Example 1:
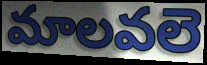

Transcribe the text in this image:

మాలవలె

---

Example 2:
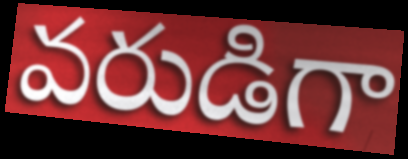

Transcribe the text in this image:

వరుడిగా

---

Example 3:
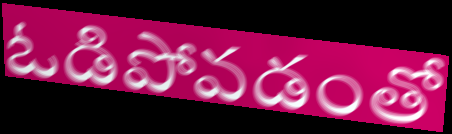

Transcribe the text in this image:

ఓడిపోవడంతో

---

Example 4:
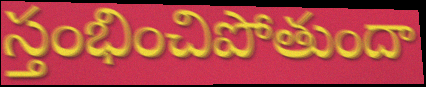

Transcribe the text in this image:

స్తంభించిపోతుందా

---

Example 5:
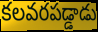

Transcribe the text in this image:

కలవరపడ్డాడు